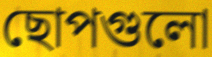
ছোপগুলো